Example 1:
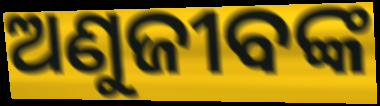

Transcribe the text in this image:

ଅଣୁଜୀବଙ୍କ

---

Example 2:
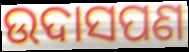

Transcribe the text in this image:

ଉଦାସପଣ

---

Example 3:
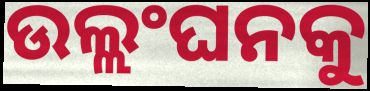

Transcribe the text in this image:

ଉଲ୍ଲଂଘନକୁ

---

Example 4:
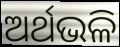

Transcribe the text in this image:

ଅର୍ଥଭଳି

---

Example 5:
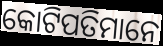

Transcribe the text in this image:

କୋଟିପତିମାନେ